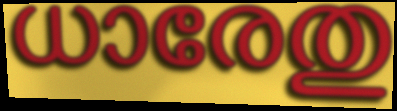
ധാരേതു